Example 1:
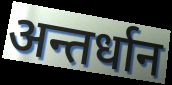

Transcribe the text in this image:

अन्तर्धान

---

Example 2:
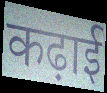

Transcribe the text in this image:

कढ़ाई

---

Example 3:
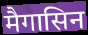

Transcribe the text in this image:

मैगासिन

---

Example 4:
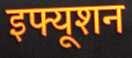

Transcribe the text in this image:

इफ्यूशन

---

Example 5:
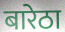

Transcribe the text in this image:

बारेठा